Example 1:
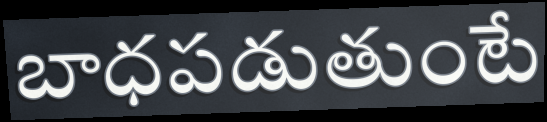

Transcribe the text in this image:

బాధపడుతుంటే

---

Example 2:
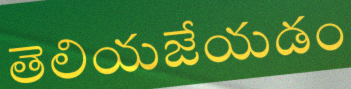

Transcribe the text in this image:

తెలియజేయడం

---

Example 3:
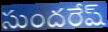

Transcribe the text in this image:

సుందరేష్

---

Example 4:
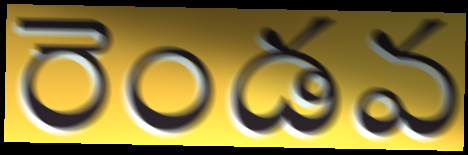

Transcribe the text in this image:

రెండవ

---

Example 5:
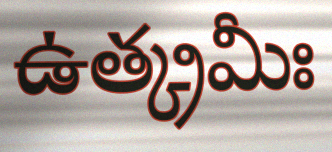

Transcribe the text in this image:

ఉత్క్రమీః